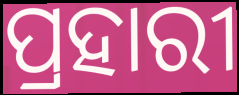
ପ୍ରହାରୀ